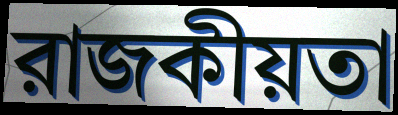
রাজকীয়তা